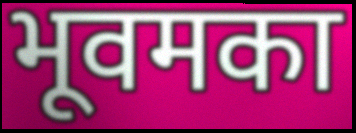
भूवमका